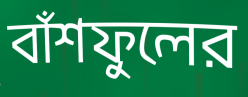
বাঁশফুলের